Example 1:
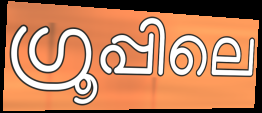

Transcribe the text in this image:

ഗ്രൂപ്പിലെ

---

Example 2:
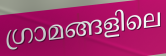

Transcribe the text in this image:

ഗ്രാമങ്ങളിലെ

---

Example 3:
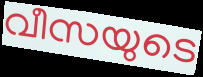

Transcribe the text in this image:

വീസയുടെ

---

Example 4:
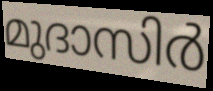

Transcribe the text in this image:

മുദാസിർ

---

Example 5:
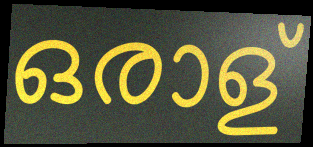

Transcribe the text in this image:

ഒരാള്